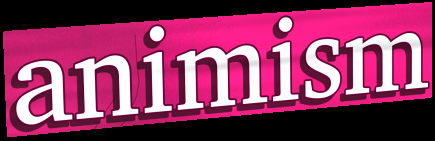
animism